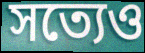
সত্যেও